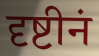
दृष्टीनं